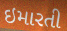
ઇમારતી